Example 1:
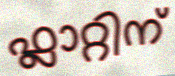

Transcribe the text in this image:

ഫ്ലാറ്റിന്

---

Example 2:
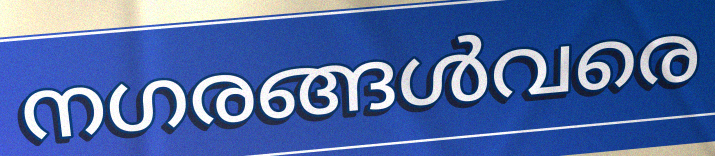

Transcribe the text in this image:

നഗരങ്ങൾവരെ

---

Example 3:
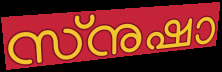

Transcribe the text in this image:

സ്നുഷാ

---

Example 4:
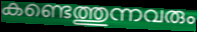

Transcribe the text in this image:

കണ്ടെത്തുന്നവരും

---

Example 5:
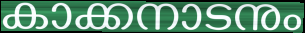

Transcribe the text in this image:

കാക്കനാടനും